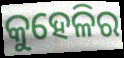
କୁହେଳିର